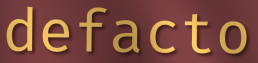
defacto